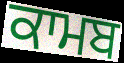
ਕਾਮਬ